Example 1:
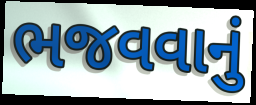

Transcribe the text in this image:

ભજવવાનું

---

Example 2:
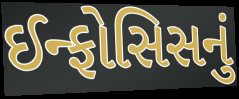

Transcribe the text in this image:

ઈન્ફોસિસનું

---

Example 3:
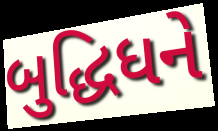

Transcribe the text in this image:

બુદ્ધિધને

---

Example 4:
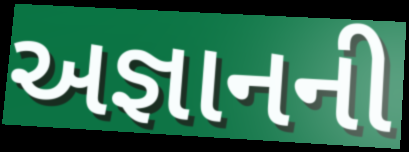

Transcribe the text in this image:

અજ્ઞાનની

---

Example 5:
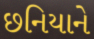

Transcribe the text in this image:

છનિયાને